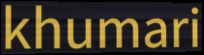
khumari